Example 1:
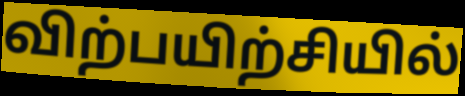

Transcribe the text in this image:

விற்பயிற்சியில்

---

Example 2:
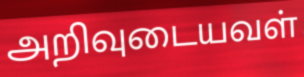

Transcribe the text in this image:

அறிவுடையவள்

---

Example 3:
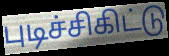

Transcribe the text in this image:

புடிச்சிகிட்டு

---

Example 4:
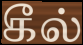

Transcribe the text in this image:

கீல்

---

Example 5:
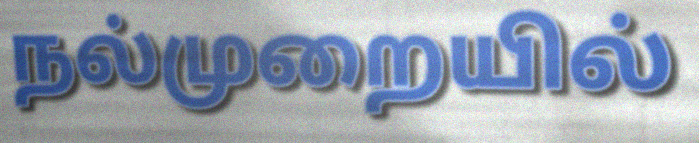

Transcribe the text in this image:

நல்முறையில்